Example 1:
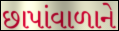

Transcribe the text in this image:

છાપાંવાળાને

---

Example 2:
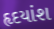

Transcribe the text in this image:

હૃદયાંશ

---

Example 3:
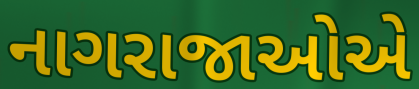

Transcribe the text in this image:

નાગરાજાઓએ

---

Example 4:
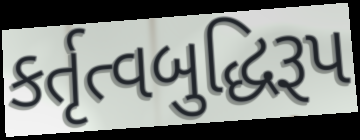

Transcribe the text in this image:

કર્તૃત્વબુદ્ધિરૂપ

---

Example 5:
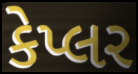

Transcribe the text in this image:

કેપ્લર